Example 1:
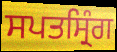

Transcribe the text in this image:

ਸਪਤਸ੍ਰਿੰਗ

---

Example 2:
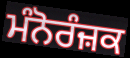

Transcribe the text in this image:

ਮੰਨੋਰੰਜ਼ਕ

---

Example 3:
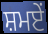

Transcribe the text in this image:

ਸ਼ਮਏਂ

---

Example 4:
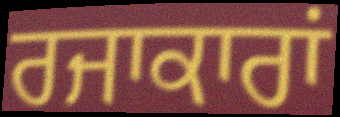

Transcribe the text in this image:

ਰਜਾਕਾਰਾਂ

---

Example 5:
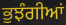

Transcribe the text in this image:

ਭੁਝੰਗੀਆਂ